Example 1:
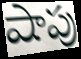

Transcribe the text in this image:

షాపు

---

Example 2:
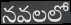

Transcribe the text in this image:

నవలలో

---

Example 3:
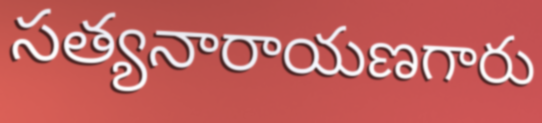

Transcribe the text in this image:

సత్యనారాయణగారు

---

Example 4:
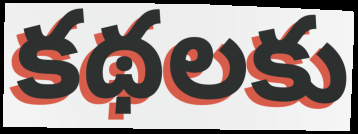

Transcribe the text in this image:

కథలకు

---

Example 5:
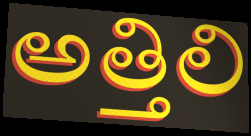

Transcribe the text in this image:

అత్తిలి